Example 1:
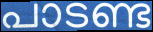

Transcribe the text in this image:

പാടണ്ട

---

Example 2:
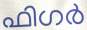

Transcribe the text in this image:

ഫിഗർ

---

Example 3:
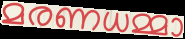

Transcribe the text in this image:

മരണധമ്മാ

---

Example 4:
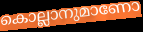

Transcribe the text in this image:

കൊല്ലാനുമാണോ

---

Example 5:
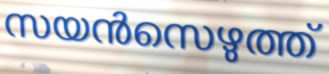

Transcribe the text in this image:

സയൻസെഴുത്ത്